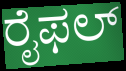
ರೈಫಲ್